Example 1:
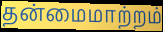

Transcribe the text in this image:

தன்மைமாற்றம்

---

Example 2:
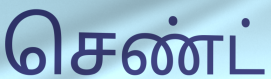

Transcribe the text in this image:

செண்ட்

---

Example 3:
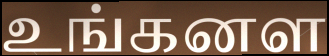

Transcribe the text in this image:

உங்கனள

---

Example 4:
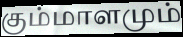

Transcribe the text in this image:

கும்மாளமும்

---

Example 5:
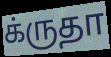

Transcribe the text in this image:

க்ருதா